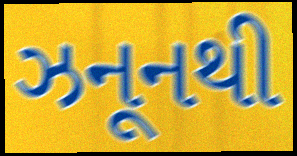
ઝનૂનથી